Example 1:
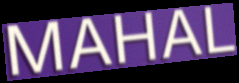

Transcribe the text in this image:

MAHAL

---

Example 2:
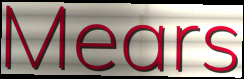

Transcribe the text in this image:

Mears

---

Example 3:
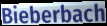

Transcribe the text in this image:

Bieberbach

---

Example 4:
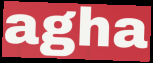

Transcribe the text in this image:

agha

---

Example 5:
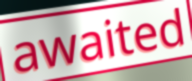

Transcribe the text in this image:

awaited